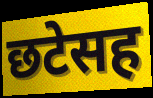
छटेसह